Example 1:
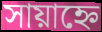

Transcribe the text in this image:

সায়াহ্নে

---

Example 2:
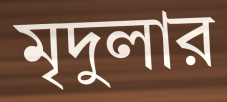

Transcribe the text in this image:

মৃদুলার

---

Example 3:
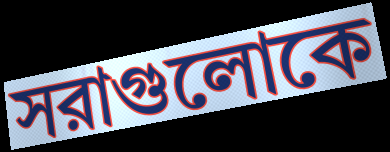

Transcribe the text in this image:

সরাগুলোকে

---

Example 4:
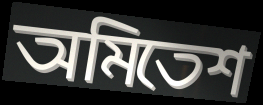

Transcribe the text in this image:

অমিতেশ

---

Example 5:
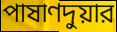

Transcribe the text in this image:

পাষাণদুয়ার